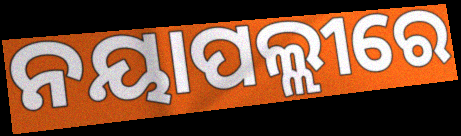
ନୟାପଲ୍ଲୀରେ